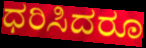
ಧರಿಸಿದರೂ